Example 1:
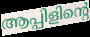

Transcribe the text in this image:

ആപ്പിളിന്റെ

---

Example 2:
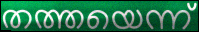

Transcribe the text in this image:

തത്തയെന്ന്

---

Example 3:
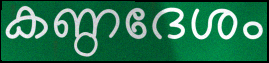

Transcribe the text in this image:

കണ്ഠദേശം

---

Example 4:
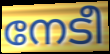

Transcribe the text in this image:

നേടീ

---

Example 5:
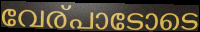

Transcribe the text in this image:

വേര്പാടോടെ